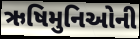
ઋષિમુનિઓની